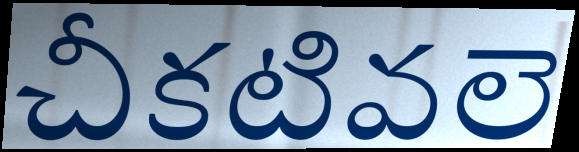
చీకటివలె